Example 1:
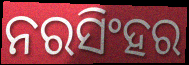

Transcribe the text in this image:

ନରସିଂହର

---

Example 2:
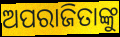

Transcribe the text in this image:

ଅପରାଜିତାଙ୍କୁ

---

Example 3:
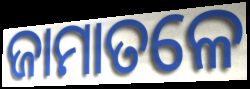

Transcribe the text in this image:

ଜାମାତଳେ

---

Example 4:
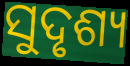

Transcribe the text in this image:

ସୁଦୃଶ୍ଯ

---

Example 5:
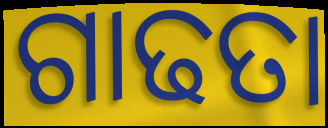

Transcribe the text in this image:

ଗାଢତା